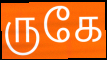
ருகே